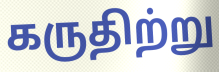
கருதிற்று